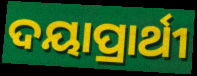
ଦୟାପ୍ରାର୍ଥୀ